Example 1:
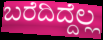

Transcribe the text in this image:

ಬರೆದಿದ್ದೆಲ್ಲ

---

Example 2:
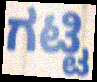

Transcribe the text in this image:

ಗಟ್ಟಿ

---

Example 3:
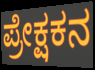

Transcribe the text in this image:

ಪ್ರೇಕ್ಷಕನ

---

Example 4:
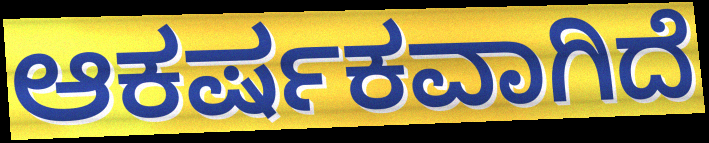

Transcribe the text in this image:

ಆಕರ್ಷಕವಾಗಿದೆ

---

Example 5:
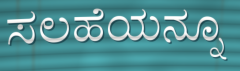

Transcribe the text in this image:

ಸಲಹೆಯನ್ನೂ